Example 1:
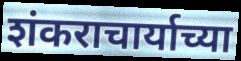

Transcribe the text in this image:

शंकराचार्याच्या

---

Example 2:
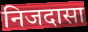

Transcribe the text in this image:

निजदासा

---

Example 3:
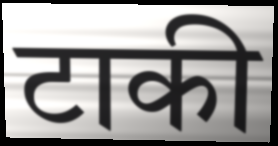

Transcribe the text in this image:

टाकी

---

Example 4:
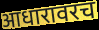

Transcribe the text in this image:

आधारावरच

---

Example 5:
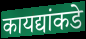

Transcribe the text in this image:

कायद्यांकडे